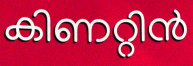
കിണറ്റിൻ